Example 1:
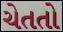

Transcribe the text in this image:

ચેતતો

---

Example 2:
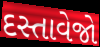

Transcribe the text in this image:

દસ્તાવેજો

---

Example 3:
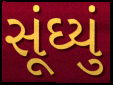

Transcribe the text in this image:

સૂંઘ્યું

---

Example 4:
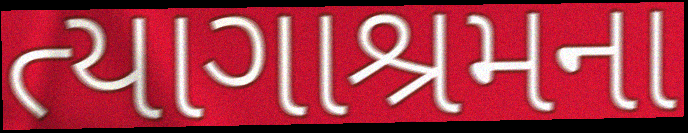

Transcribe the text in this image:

ત્યાગાશ્રમના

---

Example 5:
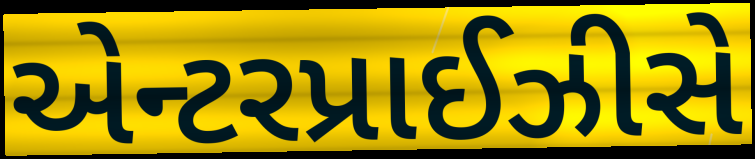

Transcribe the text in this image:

એન્ટરપ્રાઈઝીસે